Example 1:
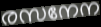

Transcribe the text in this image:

രസനേന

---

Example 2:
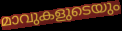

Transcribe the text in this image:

മാവുകളുടെയും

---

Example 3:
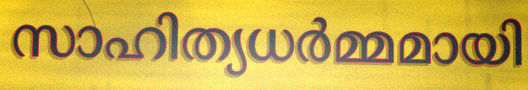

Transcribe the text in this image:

സാഹിത്യധർമ്മമായി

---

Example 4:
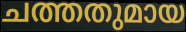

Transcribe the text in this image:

ചത്തതുമായ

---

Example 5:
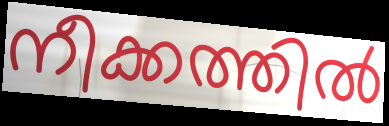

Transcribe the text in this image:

നീക്കത്തിൽ